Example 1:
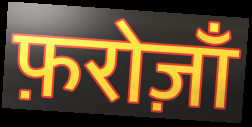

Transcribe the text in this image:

फ़रोज़ाँ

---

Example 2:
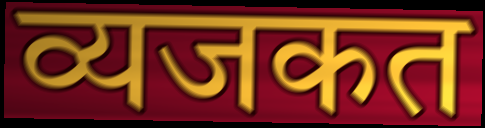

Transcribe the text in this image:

व्यजकत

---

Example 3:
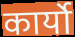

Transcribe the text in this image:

कार्यो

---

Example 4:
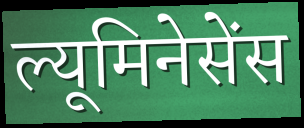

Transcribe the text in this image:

ल्यूमिनेसेंस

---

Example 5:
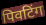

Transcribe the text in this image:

पिवटिंग